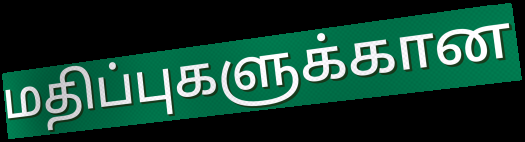
மதிப்புகளுக்கான